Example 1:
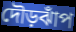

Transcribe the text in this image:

দৌড়ঝাঁপ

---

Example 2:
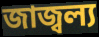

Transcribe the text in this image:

জাজ্বল্য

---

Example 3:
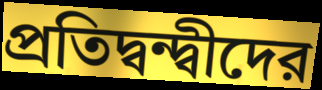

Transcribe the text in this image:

প্রতিদ্বন্দ্বীদের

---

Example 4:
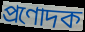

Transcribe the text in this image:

প্রণোদক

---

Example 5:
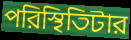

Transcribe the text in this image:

পরিস্থিতিটার